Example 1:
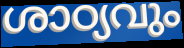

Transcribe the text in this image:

ശാഠ്യവും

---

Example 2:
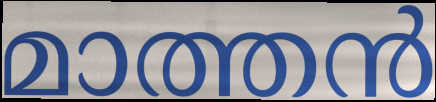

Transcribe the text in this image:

മാത്തൻ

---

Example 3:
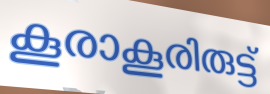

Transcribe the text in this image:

കൂരാകൂരിരുട്ട്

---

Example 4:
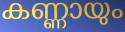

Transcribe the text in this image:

കണ്ണായും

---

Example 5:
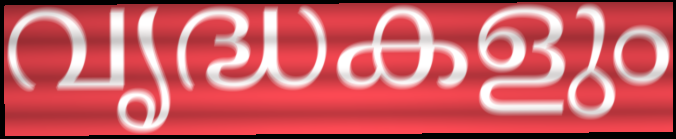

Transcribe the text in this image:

വൃദ്ധകളും